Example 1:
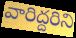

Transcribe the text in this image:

వారిద్దరిని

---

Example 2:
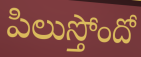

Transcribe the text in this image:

పిలుస్తోందో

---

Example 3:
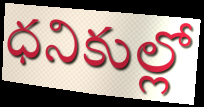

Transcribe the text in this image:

ధనికుల్లో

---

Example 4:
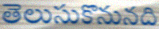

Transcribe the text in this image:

తెలుసుకొనునది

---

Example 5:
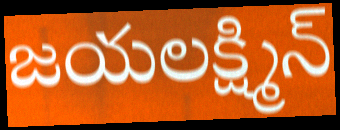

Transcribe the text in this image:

జయలక్ష్మిన్